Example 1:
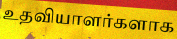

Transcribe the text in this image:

உதவியாளர்களாக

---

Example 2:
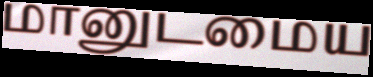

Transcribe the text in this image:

மானுடமைய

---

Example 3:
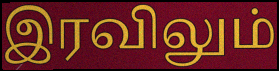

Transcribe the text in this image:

இரவிலும்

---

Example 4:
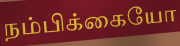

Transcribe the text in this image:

நம்பிக்கையோ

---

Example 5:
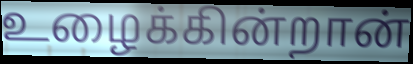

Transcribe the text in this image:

உழைக்கின்றான்